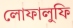
লোফালুফি